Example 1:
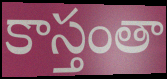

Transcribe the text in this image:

కాస్తంతా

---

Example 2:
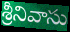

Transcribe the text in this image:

శ్రీనివాసు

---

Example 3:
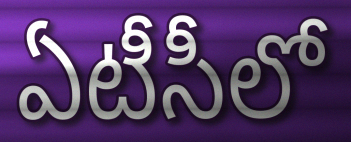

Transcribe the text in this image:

ఏటీసీలో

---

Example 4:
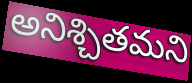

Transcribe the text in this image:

అనిశ్చితమని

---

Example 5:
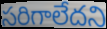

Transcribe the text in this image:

సరిగాలేదని